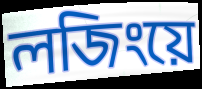
লজিংয়ে